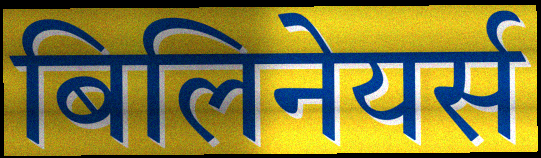
बिलिनेयर्स